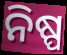
ନିଷ୍ପ